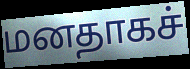
மனதாகச்